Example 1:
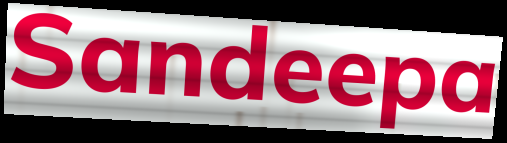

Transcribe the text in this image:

Sandeepa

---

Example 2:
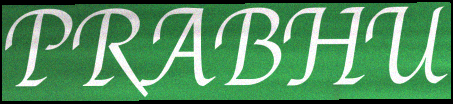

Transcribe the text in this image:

PRABHU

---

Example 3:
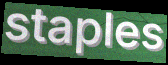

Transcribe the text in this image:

staples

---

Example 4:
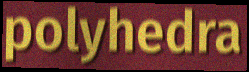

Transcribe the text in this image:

polyhedra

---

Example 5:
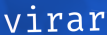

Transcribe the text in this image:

virar